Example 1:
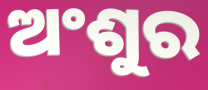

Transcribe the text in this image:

ଅଂଶୁର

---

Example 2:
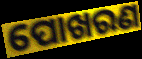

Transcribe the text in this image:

ପୋଖରଣ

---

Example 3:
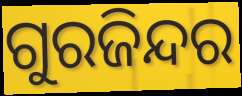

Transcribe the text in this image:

ଗୁରଜିନ୍ଦର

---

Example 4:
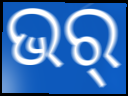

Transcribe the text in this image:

ଭର୍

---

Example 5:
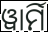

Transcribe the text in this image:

ୱାର୍ମି